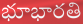
భూభారతి